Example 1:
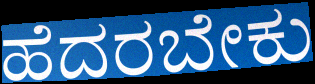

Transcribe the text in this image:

ಹೆದರಬೇಕು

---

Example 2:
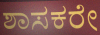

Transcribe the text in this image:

ಶಾಸಕರೇ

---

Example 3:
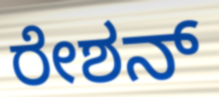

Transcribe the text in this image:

ರೇಶನ್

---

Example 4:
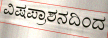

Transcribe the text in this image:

ವಿಷಪ್ರಾಶನದಿಂದ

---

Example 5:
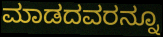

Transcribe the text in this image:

ಮಾಡದವರನ್ನೂ